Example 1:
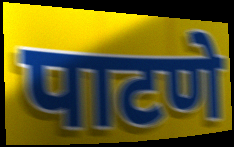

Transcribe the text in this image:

पाटणे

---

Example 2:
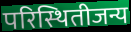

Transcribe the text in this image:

परिस्थितीजन्य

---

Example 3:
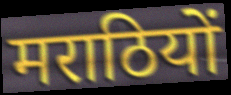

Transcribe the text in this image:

मराठियों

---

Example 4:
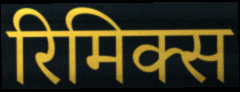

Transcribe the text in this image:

रिमिक्स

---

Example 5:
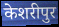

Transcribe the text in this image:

केशरीपुर